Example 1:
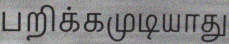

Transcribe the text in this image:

பறிக்கமுடியாது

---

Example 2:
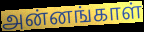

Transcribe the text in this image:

அன்னங்காள்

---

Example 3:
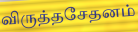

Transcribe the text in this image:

விருத்தசேதனம்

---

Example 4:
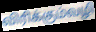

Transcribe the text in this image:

விரிக்கும்வழி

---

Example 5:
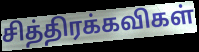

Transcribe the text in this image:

சித்திரக்கவிகள்